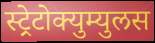
स्ट्रेटोक्युम्युलस